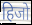
हिजो